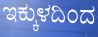
ಇಕ್ಕುಳದಿಂದ